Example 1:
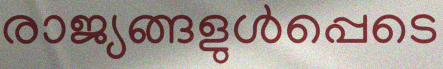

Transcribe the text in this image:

രാജ്യങ്ങളുൾപ്പെടെ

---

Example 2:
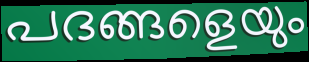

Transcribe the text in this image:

പദങ്ങളെയും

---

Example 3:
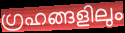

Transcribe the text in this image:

ഗ്രഹങ്ങളിലും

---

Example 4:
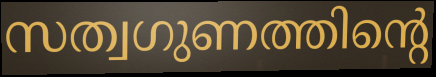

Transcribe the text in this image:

സത്വഗുണത്തിന്റെ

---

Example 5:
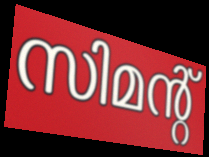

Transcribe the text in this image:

സിമന്റ്